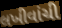
લખીવાંચી